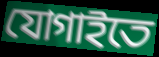
যোগাইতে